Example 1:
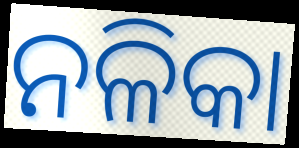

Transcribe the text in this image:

ନଳିକା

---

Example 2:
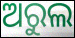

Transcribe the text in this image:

ଅରୁଲ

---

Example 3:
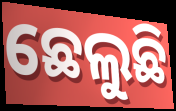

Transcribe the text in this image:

ଛେଲୁଛି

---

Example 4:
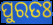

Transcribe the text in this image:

ପୁରତଃ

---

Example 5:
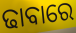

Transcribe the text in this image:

ଢାବାରେ